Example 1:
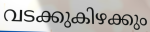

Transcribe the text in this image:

വടക്കുകിഴക്കും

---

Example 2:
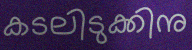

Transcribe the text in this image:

കടലിടുക്കിനു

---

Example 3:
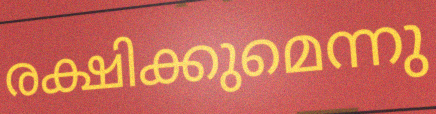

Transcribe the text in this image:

രക്ഷിക്കുമെന്നു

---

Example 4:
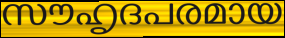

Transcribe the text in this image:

സൗഹൃദപരമായ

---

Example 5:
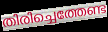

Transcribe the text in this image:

തിരിച്ചെത്തേണ്ട